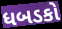
ધબડકો